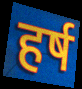
हर्ष